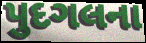
પુદગલના